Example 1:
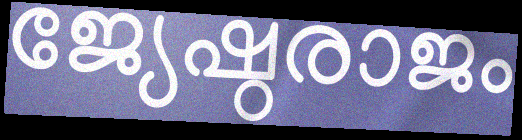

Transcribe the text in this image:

ജ്യേഷ്ഠരാജം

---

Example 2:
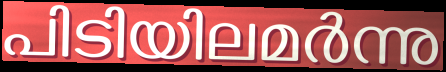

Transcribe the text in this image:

പിടിയിലമർന്നു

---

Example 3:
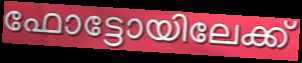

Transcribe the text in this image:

ഫോട്ടോയിലേക്ക്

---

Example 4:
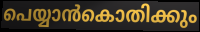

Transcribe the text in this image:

പെയ്യാൻകൊതിക്കും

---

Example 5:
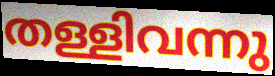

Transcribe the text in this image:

തള്ളിവന്നു